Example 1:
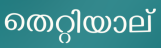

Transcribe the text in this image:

തെറ്റിയാല്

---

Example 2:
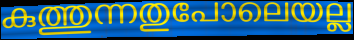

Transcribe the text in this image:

കുത്തുന്നതുപോലെയല്ല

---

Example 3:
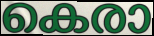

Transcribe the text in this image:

കെരാ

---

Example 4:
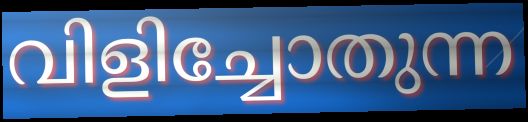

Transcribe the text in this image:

വിളിച്ചോതുന്ന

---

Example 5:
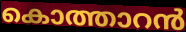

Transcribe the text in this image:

കൊത്താറൻ